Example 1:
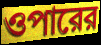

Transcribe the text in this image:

ওপারের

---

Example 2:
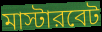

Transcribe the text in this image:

মাস্টারবেট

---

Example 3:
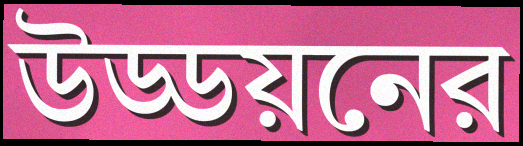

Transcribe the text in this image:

উড্ডয়নের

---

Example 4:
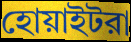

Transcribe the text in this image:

হোয়াইটরা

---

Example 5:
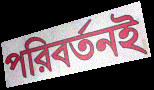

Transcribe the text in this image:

পরিবর্তনই